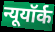
न्यूयॉर्क